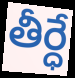
తీర్ధే